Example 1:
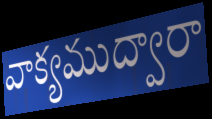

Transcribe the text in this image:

వాక్యముద్వారా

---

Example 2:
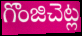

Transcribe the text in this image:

గొంజిచెట్ల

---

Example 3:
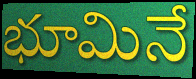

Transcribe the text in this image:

భూమినే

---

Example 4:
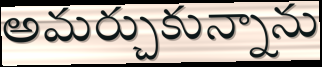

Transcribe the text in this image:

అమర్చుకున్నాను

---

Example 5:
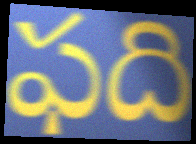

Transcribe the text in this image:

ఫది